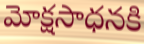
మోక్షసాధనకి